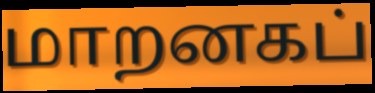
மாறனகப்